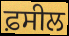
ਫ਼ਸੀਲ